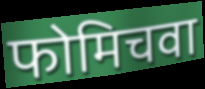
फोमिचवा